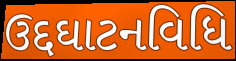
ઉદ્દઘાટનવિધિ